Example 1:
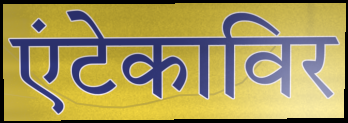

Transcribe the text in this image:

एंटेकाविर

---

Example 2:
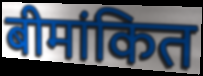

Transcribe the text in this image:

बीमांकित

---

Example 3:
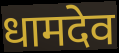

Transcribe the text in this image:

धामदेव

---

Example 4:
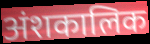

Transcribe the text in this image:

अंशकालिक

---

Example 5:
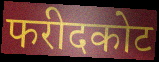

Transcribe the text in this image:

फरीदकोट